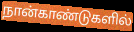
நான்காண்டுகளில்